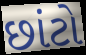
છાંટો